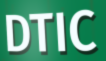
DTIC